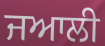
ਜਆਲੀ